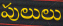
పులులు